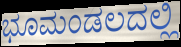
ಭೂಮಂಡಲದಲ್ಲಿ